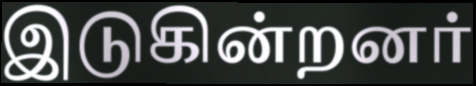
இடுகின்றனர்